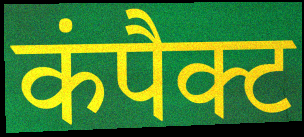
कंपैक्ट